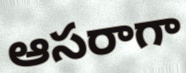
ఆసరాగా